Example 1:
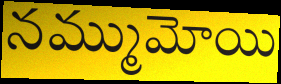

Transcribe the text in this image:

నమ్ముమోయి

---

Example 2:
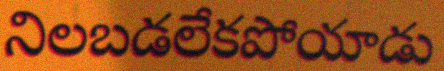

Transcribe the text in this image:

నిలబడలేకపోయాడు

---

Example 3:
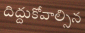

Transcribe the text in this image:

దిద్దుకోవాల్సిన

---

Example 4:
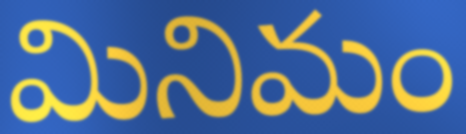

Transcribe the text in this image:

మినిమం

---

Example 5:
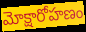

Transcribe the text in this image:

మోక్షారోహణం